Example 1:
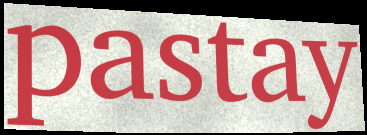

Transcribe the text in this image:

pastay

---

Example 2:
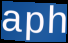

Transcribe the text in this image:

aph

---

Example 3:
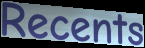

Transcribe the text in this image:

Recents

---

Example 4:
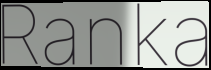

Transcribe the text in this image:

Ranka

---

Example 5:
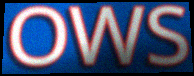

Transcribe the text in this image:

OWS